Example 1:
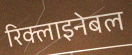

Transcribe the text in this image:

रिक्लाइनेबल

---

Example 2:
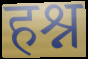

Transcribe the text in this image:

हश्न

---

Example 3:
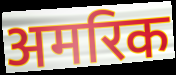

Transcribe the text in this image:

अमरिक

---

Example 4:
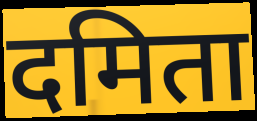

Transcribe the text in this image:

दमिता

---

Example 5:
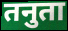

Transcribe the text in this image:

तनुता